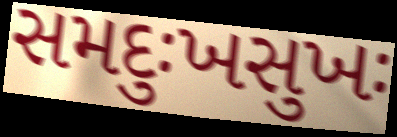
સમદુઃખસુખઃ